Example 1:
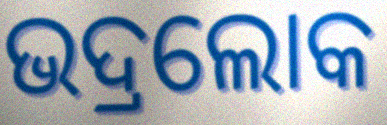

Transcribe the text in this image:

ଭଦ୍ରଲୋକ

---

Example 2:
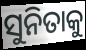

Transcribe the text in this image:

ସୁନିତାକୁ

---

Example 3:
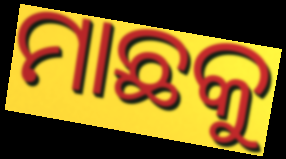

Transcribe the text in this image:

ମାଛକୁ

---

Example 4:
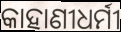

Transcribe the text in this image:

କାହାଣୀଧର୍ମୀ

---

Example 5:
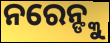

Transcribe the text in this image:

ନରେନ୍ଙ୍କୁ